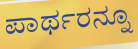
ಪಾರ್ಥರನ್ನೂ